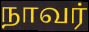
நாவர்